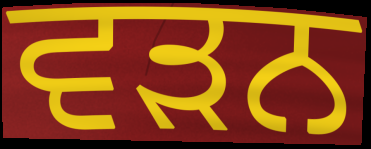
ਵਡ਼ਨ